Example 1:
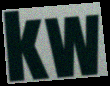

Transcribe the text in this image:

kw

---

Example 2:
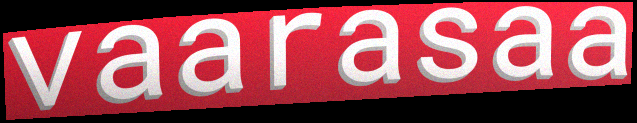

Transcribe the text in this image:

vaarasaa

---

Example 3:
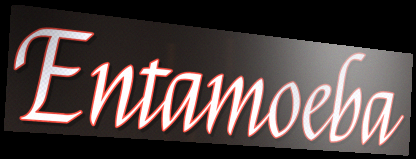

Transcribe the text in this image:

Entamoeba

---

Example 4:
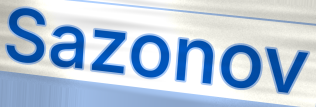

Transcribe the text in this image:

Sazonov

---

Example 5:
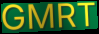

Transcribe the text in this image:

GMRT